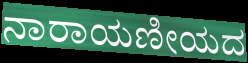
ನಾರಾಯಣೀಯದ